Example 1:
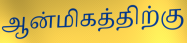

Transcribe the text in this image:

ஆன்மிகத்திற்கு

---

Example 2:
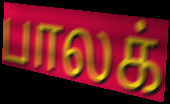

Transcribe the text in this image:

பாலக்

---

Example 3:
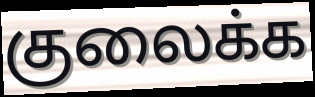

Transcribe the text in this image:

குலைக்க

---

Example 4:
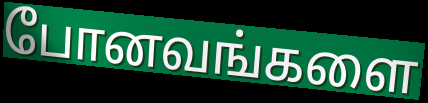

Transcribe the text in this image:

போனவங்களை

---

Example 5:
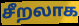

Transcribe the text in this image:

சீறலாக